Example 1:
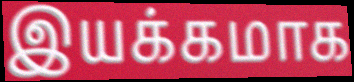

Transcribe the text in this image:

இயக்கமாக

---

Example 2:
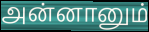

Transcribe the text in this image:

அன்னானும்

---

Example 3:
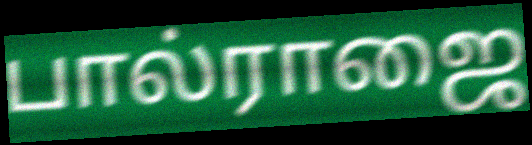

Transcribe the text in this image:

பால்ராஜை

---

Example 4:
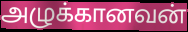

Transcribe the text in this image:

அழுக்கானவன்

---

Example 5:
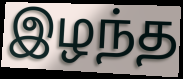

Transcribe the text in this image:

இழந்த